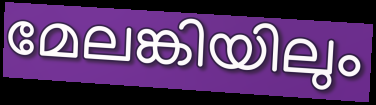
മേലങ്കിയിലും